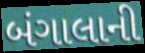
બંગાલાની